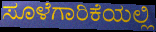
ಸೂಳೆಗಾರಿಕೆಯಲ್ಲಿ